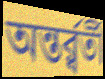
অন্তর্র্বর্তী